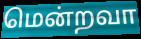
மென்றவா